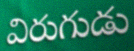
విరుగుడు